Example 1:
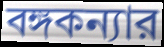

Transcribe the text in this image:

বঙ্গকন্যার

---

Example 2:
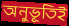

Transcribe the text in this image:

অনুভূতিই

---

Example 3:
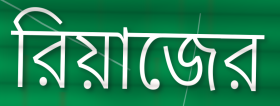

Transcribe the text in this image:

রিয়াজের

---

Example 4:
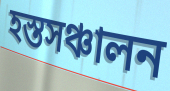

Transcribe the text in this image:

হস্তসঞ্চালন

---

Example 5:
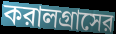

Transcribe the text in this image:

করালগ্রাসের